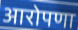
आरोपणा